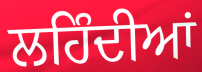
ਲਹਿੰਦੀਆਂ